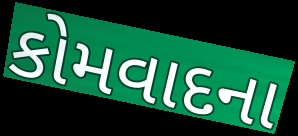
કોમવાદના